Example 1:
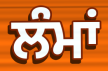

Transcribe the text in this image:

ਲੰਮਾਂ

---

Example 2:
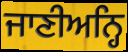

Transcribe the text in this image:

ਜਾਣੀਅਨ੍ਹਿ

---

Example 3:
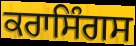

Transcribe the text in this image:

ਕਰਾਸਿੰਗਸ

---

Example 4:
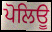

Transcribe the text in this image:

ਪੋਲਿਊ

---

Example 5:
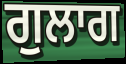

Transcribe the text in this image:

ਗੁਲਾਗ